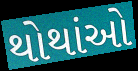
થોથાંઓ